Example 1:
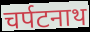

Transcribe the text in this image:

चर्पटनाथ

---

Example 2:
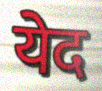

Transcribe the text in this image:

येद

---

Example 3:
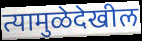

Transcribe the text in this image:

त्यामुळेदेखील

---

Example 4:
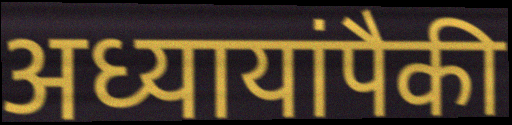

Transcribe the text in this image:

अध्यायांपैकी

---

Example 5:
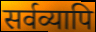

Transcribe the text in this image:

सर्वव्यापि